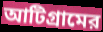
আটিগ্রামের